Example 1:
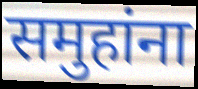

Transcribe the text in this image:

समुहांना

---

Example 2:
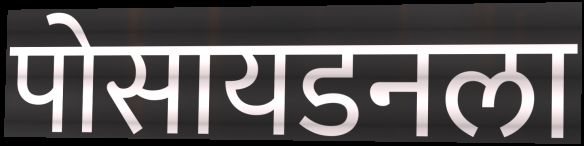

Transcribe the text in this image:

पोसायडनला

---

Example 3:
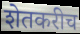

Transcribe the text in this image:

शेतकरीच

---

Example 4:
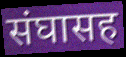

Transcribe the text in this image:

संघासह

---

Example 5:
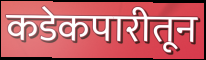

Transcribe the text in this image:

कडेकपारीतून